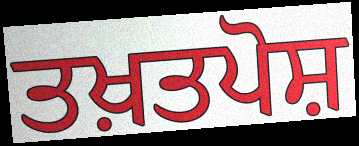
ਤਖ਼ਤਪੋਸ਼